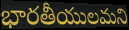
భారతీయులమని